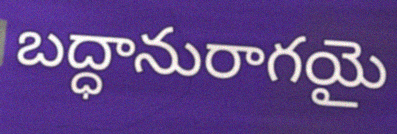
బద్ధానురాగయై